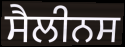
ਸੈਲੀਨਸ